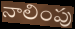
నాలింపు